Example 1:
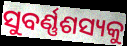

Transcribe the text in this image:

ସୁବର୍ଣ୍ଣଶସ୍ୟକୁ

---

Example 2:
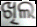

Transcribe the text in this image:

ଖିଲ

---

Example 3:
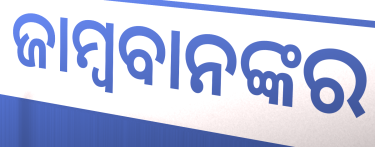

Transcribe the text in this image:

ଜାମ୍ବବାନଙ୍କର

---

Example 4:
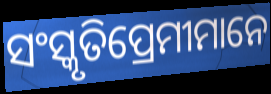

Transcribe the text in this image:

ସଂସ୍କୃତିପ୍ରେମୀମାନେ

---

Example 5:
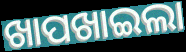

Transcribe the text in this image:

ଖାପଖାଇଲା